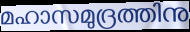
മഹാസമുദ്രത്തിനു